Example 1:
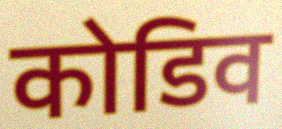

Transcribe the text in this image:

कोडिव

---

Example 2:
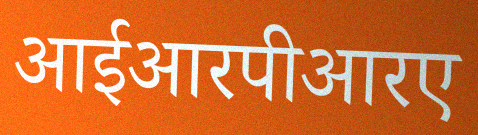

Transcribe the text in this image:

आईआरपीआरए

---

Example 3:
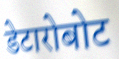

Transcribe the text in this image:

डेटारोबोट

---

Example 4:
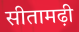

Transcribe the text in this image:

सीतामढ़ी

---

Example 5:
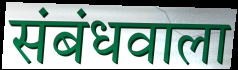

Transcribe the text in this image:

संबंधवाला